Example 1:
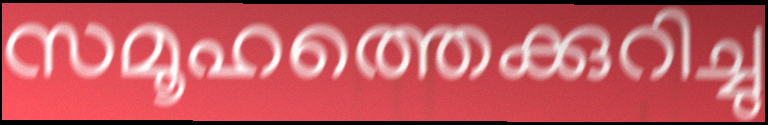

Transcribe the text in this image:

സമൂഹത്തെക്കുറിച്ചു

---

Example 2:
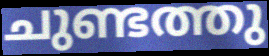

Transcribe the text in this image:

ചുണ്ടത്തു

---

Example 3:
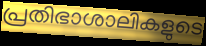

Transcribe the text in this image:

പ്രതിഭാശാലികളുടെ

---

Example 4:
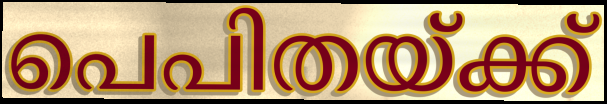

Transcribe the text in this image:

പെപിതയ്ക്ക്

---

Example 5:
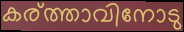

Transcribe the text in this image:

കര്ത്താവിനോടു